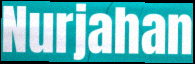
Nurjahan